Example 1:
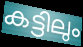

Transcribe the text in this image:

കട്ടിലും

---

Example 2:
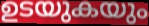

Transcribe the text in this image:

ഉടയുകയും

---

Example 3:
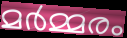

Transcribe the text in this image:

മർമ്മരം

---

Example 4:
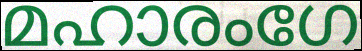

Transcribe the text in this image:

മഹാരംഗേ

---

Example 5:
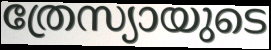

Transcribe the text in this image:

ത്രേസ്യായുടെ